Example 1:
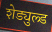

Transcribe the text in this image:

शेड्युल्ड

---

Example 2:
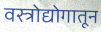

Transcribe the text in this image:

वस्त्रोद्योगातून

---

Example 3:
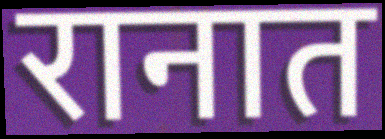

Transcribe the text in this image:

रानात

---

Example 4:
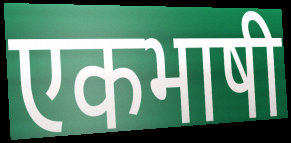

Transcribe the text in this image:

एकभाषी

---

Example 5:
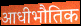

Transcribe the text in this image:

आधीभौतिक